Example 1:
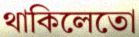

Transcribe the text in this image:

থাকিলেতো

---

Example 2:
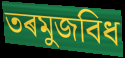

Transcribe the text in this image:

তৰমুজবিধ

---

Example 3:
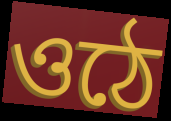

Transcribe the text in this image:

ওঠে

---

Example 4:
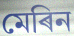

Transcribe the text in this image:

মেৰিন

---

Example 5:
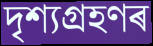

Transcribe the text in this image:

দৃশ্যগ্ৰহণৰ